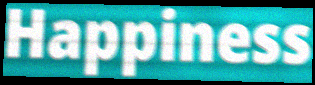
Happiness